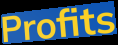
Profits